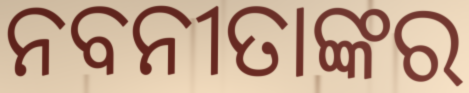
ନବନୀତାଙ୍କର